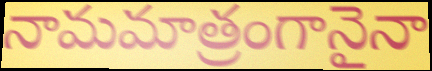
నామమాత్రంగానైనా